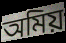
অমিয়